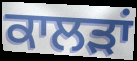
ਕਾਲੜਾਂ